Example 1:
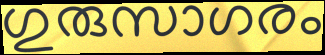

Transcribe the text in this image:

ഗുരുസാഗരം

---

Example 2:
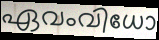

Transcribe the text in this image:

ഏവംവിധോ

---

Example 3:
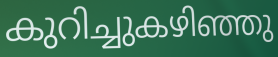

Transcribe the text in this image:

കുറിച്ചുകഴിഞ്ഞു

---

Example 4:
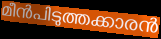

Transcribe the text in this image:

മീൻപിടുത്തക്കാരൻ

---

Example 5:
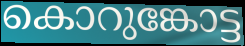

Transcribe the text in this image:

കൊറുങ്കോട്ട